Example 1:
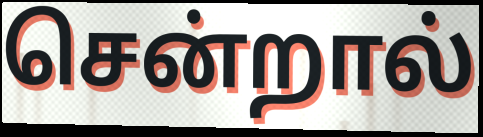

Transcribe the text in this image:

சென்றால்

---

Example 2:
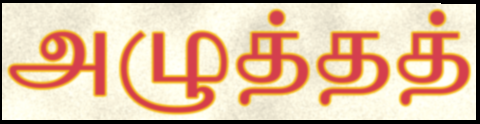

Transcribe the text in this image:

அழுத்தத்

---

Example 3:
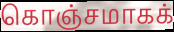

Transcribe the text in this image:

கொஞ்சமாகக்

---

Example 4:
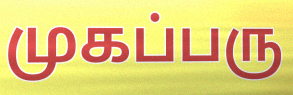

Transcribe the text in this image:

முகப்பரு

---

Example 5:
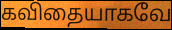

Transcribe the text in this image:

கவிதையாகவே